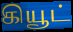
கியூட்